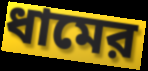
ধামের